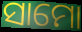
ସାମୋ